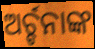
ଅର୍ଚ୍ଚନାଙ୍କ